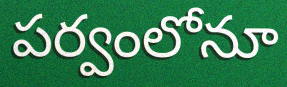
పర్వంలోనూ